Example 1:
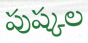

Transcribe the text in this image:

పుష్కల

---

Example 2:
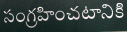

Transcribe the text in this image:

సంగ్రహించటానికి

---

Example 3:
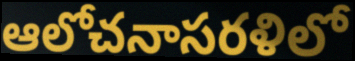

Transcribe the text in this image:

ఆలోచనాసరళిలో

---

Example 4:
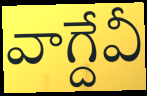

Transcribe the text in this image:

వాగ్దేవీ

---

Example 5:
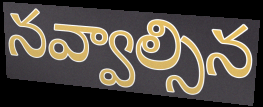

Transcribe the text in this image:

నవ్వాల్సిన